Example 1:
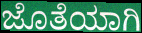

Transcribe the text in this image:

ಜೊತೆಯಾಗಿ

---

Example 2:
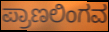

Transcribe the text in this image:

ಪ್ರಾಣಲಿಂಗವ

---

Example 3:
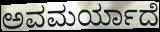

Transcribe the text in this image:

ಅವಮರ್ಯಾದೆ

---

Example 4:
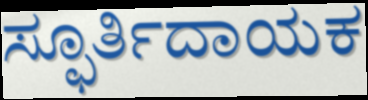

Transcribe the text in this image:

ಸ್ಫೂರ್ತಿದಾಯಕ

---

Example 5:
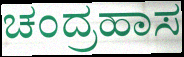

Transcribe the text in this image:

ಚಂದ್ರಹಾಸ